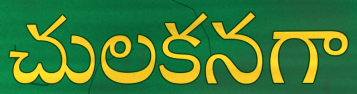
చులకనగా